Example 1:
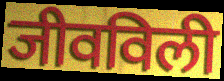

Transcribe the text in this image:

जीवविली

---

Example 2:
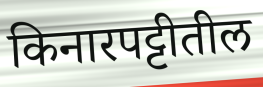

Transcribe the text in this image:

किनारपट्टीतील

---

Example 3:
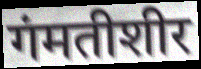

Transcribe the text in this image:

गंमतीशीर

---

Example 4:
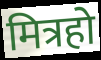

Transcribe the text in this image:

मित्रहो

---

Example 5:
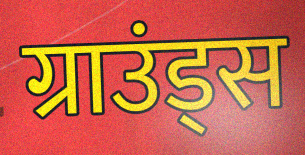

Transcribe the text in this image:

ग्राउंड्स